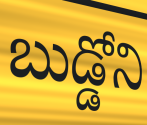
బుడ్డోని